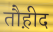
तौह़ीद